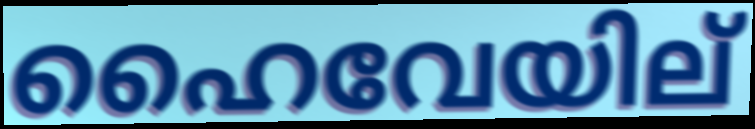
ഹൈവേയില്